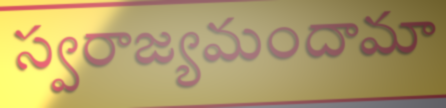
స్వరాజ్యమందామా